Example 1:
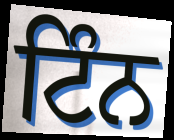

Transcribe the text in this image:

ਟਿੰਨ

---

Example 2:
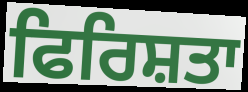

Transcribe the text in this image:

ਫਿਰਿਸ਼ਤਾ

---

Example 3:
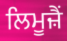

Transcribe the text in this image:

ਲਿਮੂਜ਼ੈਂ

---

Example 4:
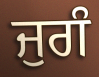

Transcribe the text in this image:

ਜੁਗੰ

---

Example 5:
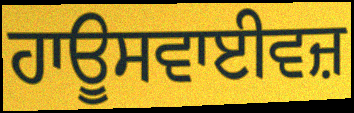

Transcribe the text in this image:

ਹਾਊਸਵਾਈਵਜ਼